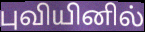
புவியினில்